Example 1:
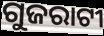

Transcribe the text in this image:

ଗୁଜରାଟୀ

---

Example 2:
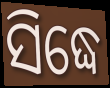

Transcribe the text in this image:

ସିଦ୍ଧେ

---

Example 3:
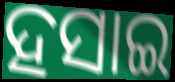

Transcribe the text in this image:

ହସାଇ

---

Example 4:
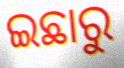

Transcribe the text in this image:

ଇଛାରୁ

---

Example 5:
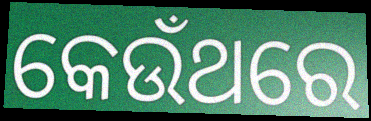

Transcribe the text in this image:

କେଉଁଥରେ